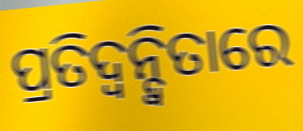
ପ୍ରତିଦ୍ୱନ୍ଦ୍ବିତାରେ